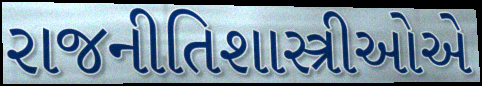
રાજનીતિશાસ્ત્રીઓએ